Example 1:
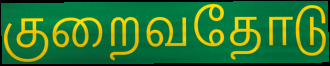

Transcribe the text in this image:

குறைவதோடு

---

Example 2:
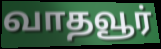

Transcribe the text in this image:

வாதவூர்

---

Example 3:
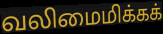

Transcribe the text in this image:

வலிமைமிக்கக்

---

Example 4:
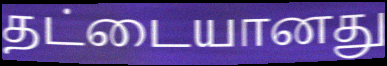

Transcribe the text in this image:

தட்டையானது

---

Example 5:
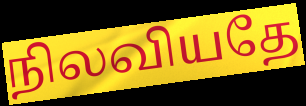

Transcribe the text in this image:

நிலவியதே